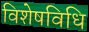
विशेषविधि